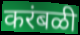
करंबळी